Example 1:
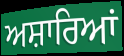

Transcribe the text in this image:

ਅਸ਼ਾਰਿਆਂ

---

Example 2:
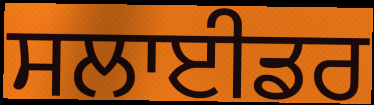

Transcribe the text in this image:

ਸਲਾਈਡਰ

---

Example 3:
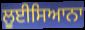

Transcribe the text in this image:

ਲੂਈਸਿਆਨਾ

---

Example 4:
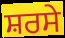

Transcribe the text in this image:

ਸ਼ਰਸੇ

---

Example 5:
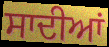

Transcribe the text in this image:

ਸਾਦੀਆਂ